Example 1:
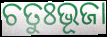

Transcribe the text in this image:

ଚତୁଃଭୂଜା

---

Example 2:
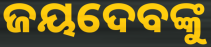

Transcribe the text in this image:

ଜୟଦେବଙ୍କୁ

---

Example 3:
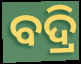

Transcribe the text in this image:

ବଦ୍ରି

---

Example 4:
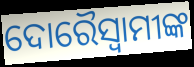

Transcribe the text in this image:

ଦୋରୈସ୍ବାମୀଙ୍କ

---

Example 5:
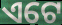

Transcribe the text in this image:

ଏଟେ